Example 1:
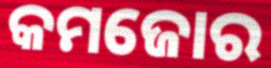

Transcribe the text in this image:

କମଜୋର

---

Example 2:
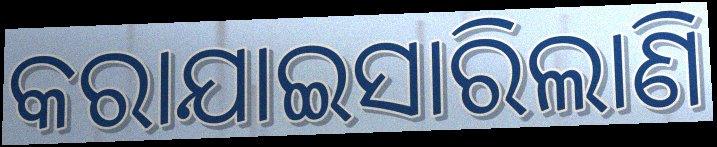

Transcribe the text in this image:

କରାଯାଇସାରିଲାଣି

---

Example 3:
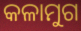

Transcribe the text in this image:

କଳାମୁଗ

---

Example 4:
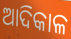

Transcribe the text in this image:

ଆଦିକାଳ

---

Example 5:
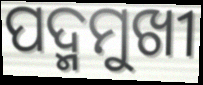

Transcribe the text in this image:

ପଦ୍ମମୁଖୀ